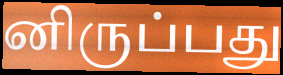
னிருப்பது